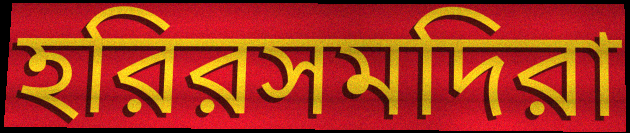
হরিরসমদিরা